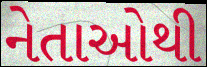
નેતાઓથી